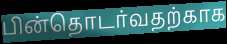
பின்தொடர்வதற்காக